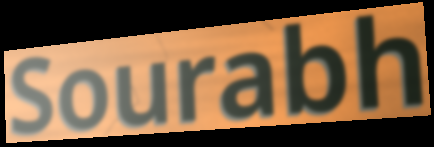
Sourabh